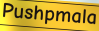
Pushpmala